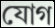
যোগ